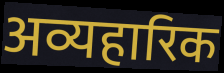
अव्यहारिक